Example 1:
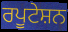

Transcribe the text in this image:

ਰਪੂਟੇਸ਼ਨ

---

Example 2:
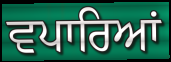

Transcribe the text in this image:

ਵਪਾਰਿਆਂ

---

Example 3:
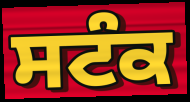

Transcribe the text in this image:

ਸਟੰਕ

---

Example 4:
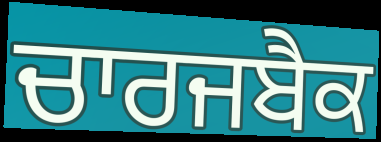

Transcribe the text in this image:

ਚਾਰਜਬੈਕ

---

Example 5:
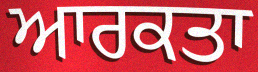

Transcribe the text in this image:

ਆਰਕਤਾ